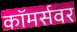
कॉमर्सवर